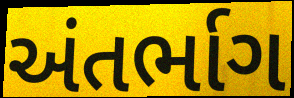
અંતર્ભાગ